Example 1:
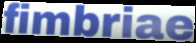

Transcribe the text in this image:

fimbriae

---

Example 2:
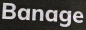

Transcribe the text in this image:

Banage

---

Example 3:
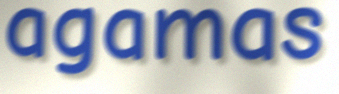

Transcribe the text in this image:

agamas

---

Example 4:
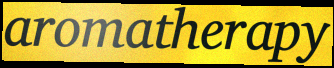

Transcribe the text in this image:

aromatherapy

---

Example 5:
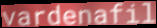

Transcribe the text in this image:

vardenafil